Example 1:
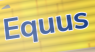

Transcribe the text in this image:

Equus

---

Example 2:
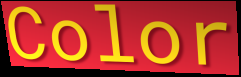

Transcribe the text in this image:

Color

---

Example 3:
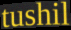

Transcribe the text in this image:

tushil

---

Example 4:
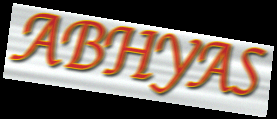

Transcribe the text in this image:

ABHYAS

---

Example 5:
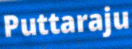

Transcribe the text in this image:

Puttaraju